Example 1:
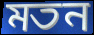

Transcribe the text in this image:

মতন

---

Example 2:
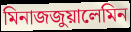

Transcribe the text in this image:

মিনাজজুয়ালেমিন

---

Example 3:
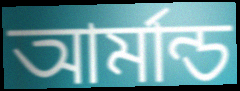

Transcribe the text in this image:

আর্মান্ড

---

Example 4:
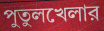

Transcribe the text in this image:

পুতুলখেলার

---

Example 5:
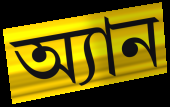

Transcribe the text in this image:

অ্যান